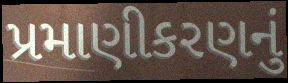
પ્રમાણીકરણનું